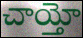
చాయ్తో